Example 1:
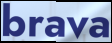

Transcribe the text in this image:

brava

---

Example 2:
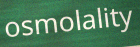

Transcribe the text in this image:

osmolality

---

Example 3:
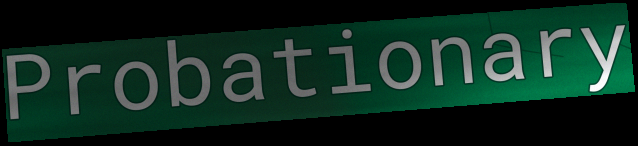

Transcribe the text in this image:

Probationary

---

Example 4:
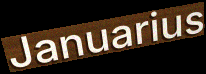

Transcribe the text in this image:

Januarius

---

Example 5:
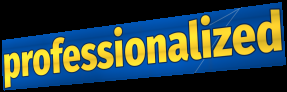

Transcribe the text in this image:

professionalized